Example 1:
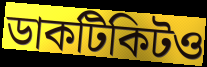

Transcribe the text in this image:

ডাকটিকিটও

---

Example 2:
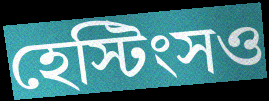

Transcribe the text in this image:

হেস্টিংসও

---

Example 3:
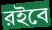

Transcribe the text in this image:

রইবে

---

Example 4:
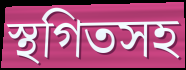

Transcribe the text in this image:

স্থগিতসহ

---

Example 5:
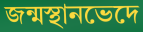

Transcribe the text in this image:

জন্মস্থানভেদে